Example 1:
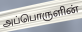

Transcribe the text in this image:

அப்பொருளின்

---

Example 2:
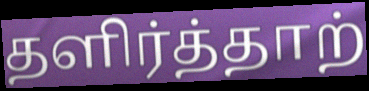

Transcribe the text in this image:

தளிர்த்தாற்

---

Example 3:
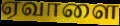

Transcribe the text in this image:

ஏவாளை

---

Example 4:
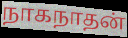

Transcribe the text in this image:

நாகநாதன்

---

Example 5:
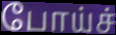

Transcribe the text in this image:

போய்ச்